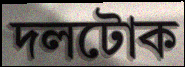
দলটোক